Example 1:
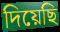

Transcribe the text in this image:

দিয়েছি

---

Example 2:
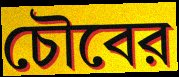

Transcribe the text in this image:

চৌবের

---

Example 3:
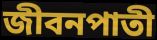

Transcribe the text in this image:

জীবনপাতী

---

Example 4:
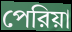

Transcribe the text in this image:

পেরিয়া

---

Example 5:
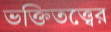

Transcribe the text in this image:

ভক্তিতত্ত্বের